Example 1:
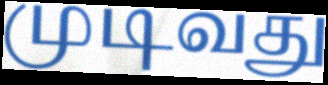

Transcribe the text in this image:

முடிவது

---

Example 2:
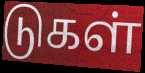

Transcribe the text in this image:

டுகள்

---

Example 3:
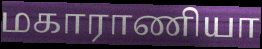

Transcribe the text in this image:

மகாராணியா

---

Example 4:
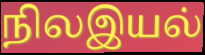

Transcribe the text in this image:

நிலஇயல்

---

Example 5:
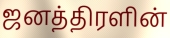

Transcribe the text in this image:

ஜனத்திரளின்